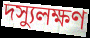
দস্যুলক্ষণ